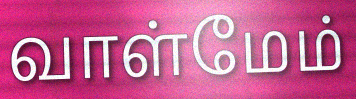
வாள்மேம்